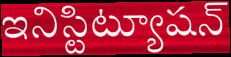
ఇనిస్టిట్యూషన్